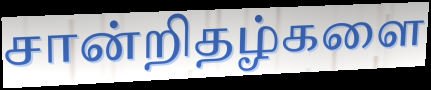
சான்றிதழ்களை